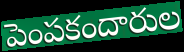
పెంపకందారుల